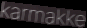
karmakke